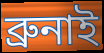
ব্ৰুনাই